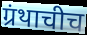
ग्रंथाचीच